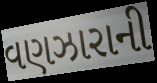
વણઝારાની